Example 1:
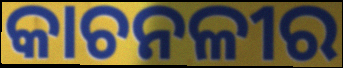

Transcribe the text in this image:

କାଚନଳୀର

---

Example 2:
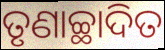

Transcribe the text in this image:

ତୃଣାଚ୍ଛାଦିତ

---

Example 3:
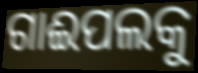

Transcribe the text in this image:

ଗାଈପଲକୁ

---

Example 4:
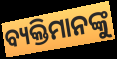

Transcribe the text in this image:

ବ୍ୟକ୍ତିମାନଙ୍କୁ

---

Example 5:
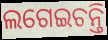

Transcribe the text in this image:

ଲଗେଇଚନ୍ତି